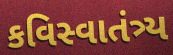
કવિસ્વાતંત્ર્ય